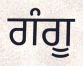
ਗੰਗੂ